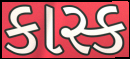
કાસ્ક